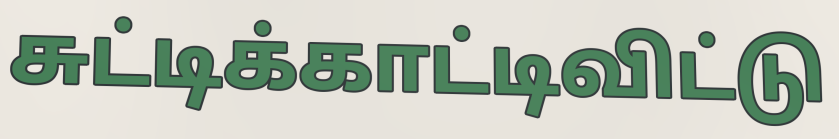
சுட்டிக்காட்டிவிட்டு